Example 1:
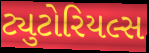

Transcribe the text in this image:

ટ્યુટોરિયલ્સ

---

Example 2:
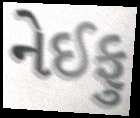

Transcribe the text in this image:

નેઈફુ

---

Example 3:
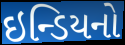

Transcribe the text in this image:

ઇન્ડિયનો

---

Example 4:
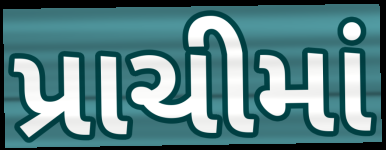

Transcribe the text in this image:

પ્રાચીમાં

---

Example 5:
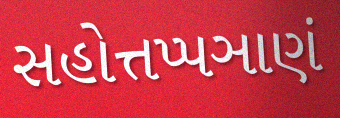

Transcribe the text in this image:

સહોત્તપ્પઞાણં